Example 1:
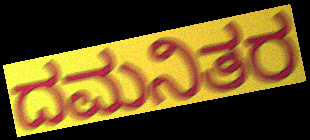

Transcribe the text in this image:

ದಮನಿತರ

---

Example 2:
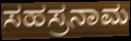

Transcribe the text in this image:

ಸಹಸ್ರನಾಮ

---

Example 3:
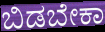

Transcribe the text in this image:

ಬಿಡಬೇಕಾ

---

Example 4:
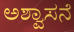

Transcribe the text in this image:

ಅಶ್ವಾಸನೆ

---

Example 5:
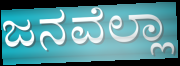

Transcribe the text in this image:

ಜನವೆಲ್ಲಾ